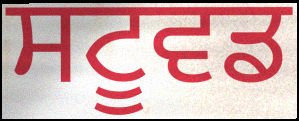
ਸਟੂਵਡ